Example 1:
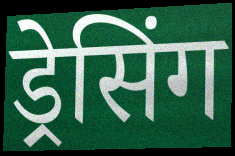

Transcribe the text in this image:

ड्रेसिंग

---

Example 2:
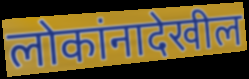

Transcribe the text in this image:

लोकांनादेखील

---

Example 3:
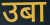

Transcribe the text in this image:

उबा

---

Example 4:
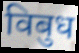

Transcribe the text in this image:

विबुध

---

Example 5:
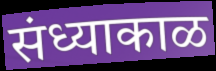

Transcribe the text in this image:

संध्याकाळ